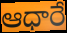
ఆధారే